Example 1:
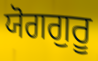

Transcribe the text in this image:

ਯੋਗਗੁਰੂ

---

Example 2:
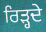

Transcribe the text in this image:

ਰਿੜ੍ਹਦੇ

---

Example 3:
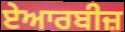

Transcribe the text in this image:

ਏਆਰਬੀਜ਼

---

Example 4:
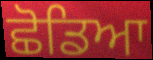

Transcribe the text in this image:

ਛੋਡਿਆ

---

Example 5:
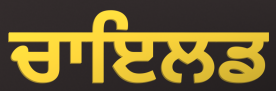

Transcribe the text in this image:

ਚਾਇਲਡ